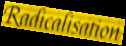
Radicalisation